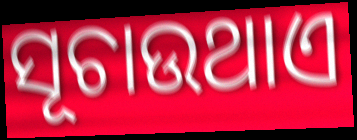
ସୂଚାଉଥାଏ